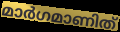
മാർഗമാണിത്